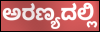
ಅರಣ್ಯದಲ್ಲಿ